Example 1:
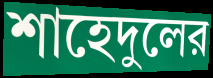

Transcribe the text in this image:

শাহেদুলের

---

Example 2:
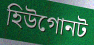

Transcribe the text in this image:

হিউগোনট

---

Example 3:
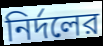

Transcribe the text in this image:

নির্দলের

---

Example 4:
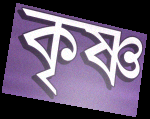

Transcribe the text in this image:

কৃষ্ণ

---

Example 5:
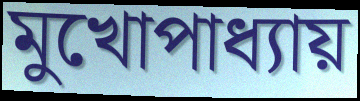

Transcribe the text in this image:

মুখোপাধ্যায়